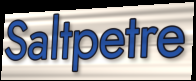
Saltpetre